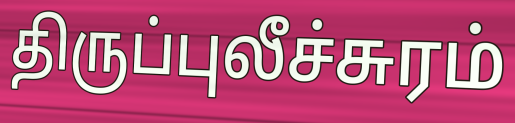
திருப்புலீச்சுரம்